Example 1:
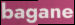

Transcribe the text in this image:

bagane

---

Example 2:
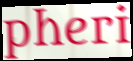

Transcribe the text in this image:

pheri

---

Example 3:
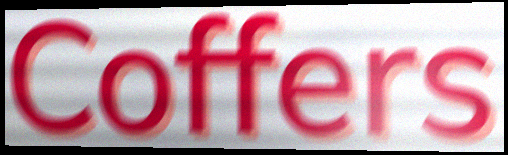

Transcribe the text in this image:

Coffers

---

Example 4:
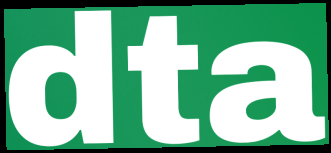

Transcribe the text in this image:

dta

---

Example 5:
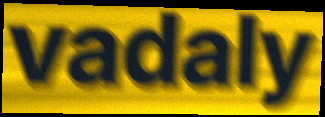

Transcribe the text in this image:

vadaly